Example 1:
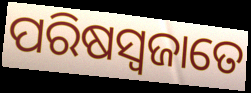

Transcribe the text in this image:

ପରିଷସ୍ଵଜାତେ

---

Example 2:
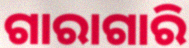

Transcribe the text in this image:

ଗାରାଗାରି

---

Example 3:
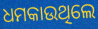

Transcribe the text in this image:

ଧମକାଉଥିଲେ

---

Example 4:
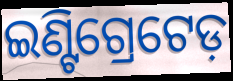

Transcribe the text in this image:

ଇଣ୍ଟିଗ୍ରେଟେଡ଼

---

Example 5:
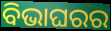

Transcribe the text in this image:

ବିଭାଘରର